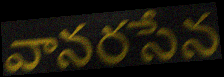
వానరసేన